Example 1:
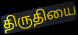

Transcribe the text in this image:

திருதியை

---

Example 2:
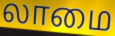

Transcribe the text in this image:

லாமை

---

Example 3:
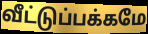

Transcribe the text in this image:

வீட்டுப்பக்கமே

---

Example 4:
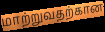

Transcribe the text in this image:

மாற்றுவதற்கான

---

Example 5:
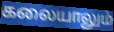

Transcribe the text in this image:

கலையாலும்